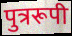
पुत्ररूपी